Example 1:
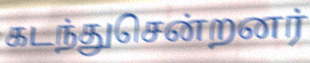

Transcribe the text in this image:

கடந்துசென்றனர்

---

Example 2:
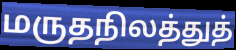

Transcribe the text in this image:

மருதநிலத்துத்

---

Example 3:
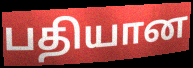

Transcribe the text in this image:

பதியான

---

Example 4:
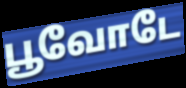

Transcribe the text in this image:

பூவோடே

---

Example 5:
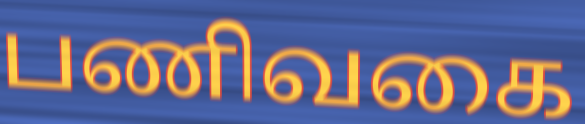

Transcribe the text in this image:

பணிவகை